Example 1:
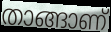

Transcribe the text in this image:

താങ്ങാണ്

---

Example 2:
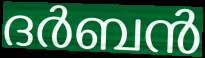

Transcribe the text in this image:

ദർബൻ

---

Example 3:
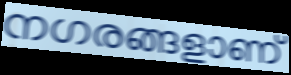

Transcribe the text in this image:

നഗരങ്ങളാണ്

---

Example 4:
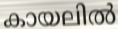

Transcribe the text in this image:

കായലിൽ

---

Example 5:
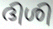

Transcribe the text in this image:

ദിശി